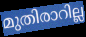
മുതിരാറില്ല